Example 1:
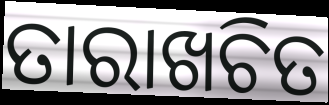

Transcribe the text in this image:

ତାରାଖଚିତ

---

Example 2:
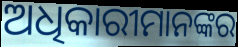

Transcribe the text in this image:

ଅଧିକାରୀମାନଙ୍କର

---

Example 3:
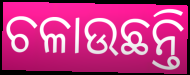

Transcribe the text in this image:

ଚଳାଉଛନ୍ତି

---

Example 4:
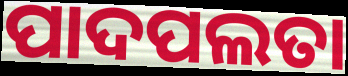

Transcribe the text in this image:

ପାଦପଲତା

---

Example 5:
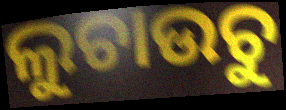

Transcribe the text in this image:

ଲୁଚାଉଚୁ